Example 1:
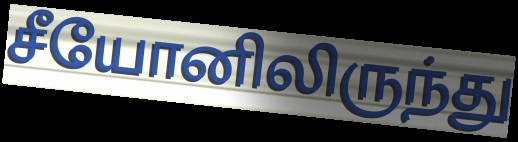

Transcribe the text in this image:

சீயோனிலிருந்து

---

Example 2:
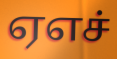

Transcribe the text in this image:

ஏஎச்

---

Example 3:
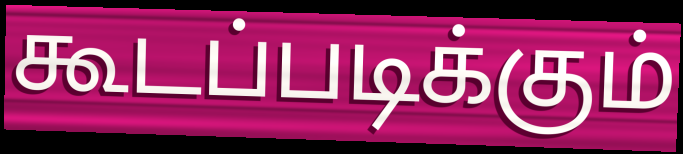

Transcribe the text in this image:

கூடப்படிக்கும்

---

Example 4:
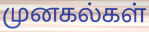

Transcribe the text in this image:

முனகல்கள்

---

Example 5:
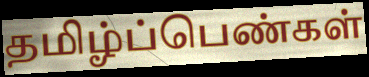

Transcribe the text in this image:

தமிழ்ப்பெண்கள்